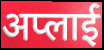
अप्लाई